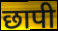
छापी